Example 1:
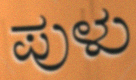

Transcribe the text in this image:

ಪುಳು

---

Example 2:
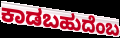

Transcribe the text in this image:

ಕಾಡಬಹುದೆಂಬ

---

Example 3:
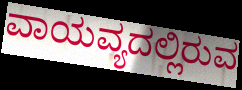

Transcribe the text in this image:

ವಾಯವ್ಯದಲ್ಲಿರುವ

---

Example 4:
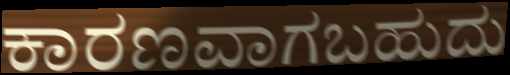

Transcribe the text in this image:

ಕಾರಣವಾಗಬಹುದು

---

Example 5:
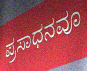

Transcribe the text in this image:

ಪ್ರಸಾಧನವೂ